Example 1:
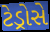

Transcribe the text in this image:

ટેડ્રોસે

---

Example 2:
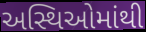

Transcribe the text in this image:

અસ્થિઓમાંથી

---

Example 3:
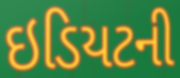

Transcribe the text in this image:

ઇડિયટની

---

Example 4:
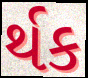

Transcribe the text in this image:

ર્થક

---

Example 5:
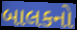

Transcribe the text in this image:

બાલકનો